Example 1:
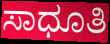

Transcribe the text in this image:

ಸಾಧೂತಿ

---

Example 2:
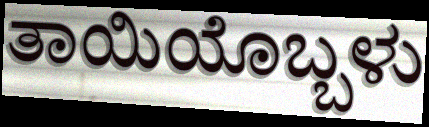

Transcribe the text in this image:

ತಾಯಿಯೊಬ್ಬಳು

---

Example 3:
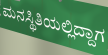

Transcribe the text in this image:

ಮನಸ್ಥಿತಿಯಲ್ಲಿದ್ದಾಗ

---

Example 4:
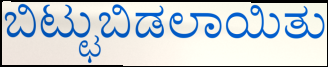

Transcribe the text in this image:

ಬಿಟ್ಟುಬಿಡಲಾಯಿತು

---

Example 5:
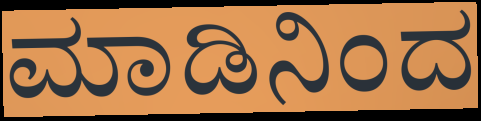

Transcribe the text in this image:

ಮಾಡಿನಿಂದ